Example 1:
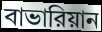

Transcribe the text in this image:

বাভারিয়ান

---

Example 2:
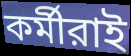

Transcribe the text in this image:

কর্মীরাই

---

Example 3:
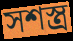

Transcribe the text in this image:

সশস্ত্র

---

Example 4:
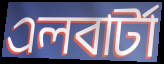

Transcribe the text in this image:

এলবার্টা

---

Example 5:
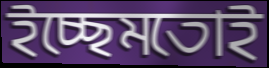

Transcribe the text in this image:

ইচ্ছেমতোই